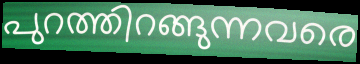
പുറത്തിറങ്ങുന്നവരെ